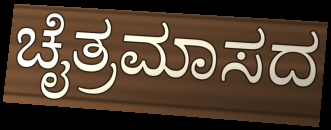
ಚೈತ್ರಮಾಸದ